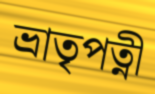
ভ্রাতৃপত্নী